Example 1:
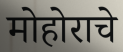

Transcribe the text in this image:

मोहोराचे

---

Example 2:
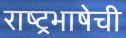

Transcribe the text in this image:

राष्ट्रभाषेची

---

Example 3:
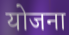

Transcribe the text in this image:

योजना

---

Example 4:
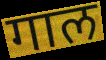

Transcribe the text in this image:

गाल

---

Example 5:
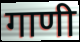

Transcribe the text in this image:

गाणी